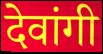
देवांगी